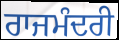
ਰਾਜਮੰਦਰੀ